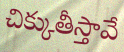
చిక్కుతీస్తావే